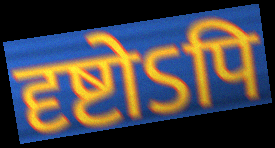
दृष्टोऽपि